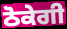
ਠੋਕੇਗੀ